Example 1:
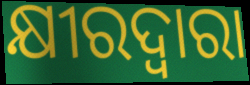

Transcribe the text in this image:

କ୍ଷୀରଦ୍ଵାରା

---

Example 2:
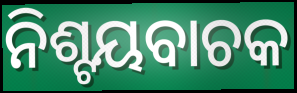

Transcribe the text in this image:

ନିଶ୍ଟୟବାଚକ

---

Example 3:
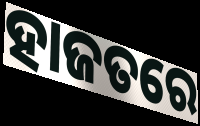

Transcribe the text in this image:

ହାଜତରେ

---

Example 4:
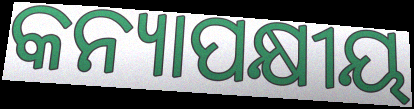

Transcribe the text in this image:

କନ୍ୟାପକ୍ଷୀୟ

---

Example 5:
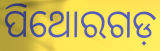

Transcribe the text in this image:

ପିଥୋରଗଡ଼